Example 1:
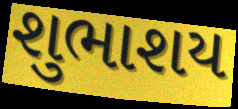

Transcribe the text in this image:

શુભાશય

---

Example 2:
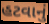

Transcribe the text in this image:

હટવાનું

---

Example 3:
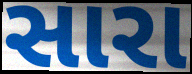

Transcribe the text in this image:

સારા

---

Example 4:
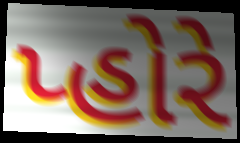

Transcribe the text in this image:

પ્હોરે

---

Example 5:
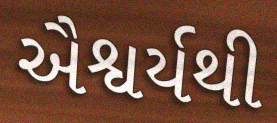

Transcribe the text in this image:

ઐશ્વર્યથી